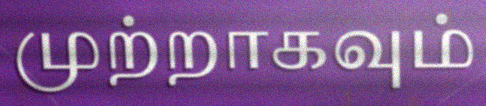
முற்றாகவும்